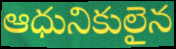
ఆధునికులైన